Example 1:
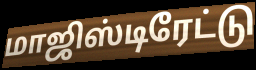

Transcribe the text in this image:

மாஜிஸ்டிரேட்டு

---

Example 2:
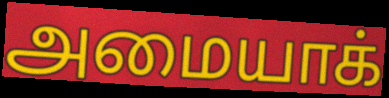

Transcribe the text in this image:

அமையாக்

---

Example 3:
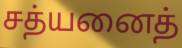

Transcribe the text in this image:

சத்யனைத்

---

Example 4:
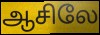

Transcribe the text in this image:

ஆசிலே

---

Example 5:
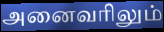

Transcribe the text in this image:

அனைவரிலும்